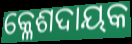
କ୍ଳେଶଦାୟକ